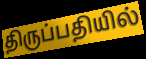
திருப்பதியில்